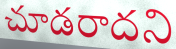
చూడరాదని